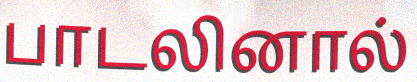
பாடலினால்